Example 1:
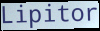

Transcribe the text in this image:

Lipitor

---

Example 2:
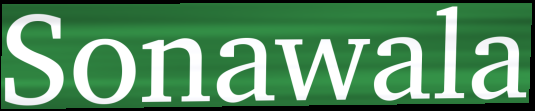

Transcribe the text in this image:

Sonawala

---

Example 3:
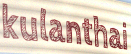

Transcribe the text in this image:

kulanthai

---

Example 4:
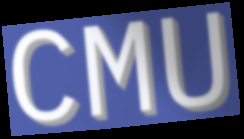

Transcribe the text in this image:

CMU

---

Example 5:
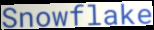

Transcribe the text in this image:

Snowflake